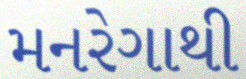
મનરેગાથી